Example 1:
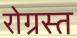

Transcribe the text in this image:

रोग्रस्त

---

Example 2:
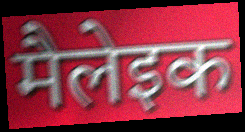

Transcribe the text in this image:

मैलेइक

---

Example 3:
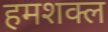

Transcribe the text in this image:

हमशक्ल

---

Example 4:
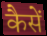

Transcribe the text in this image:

कैसें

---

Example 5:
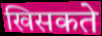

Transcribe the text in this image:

खिसकते